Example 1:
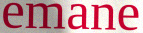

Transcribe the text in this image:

emane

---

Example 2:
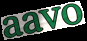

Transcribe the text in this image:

aavo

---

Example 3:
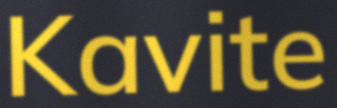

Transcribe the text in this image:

Kavite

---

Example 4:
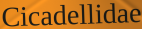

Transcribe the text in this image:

Cicadellidae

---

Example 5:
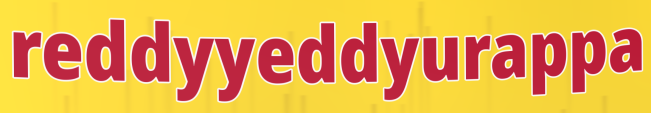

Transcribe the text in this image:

reddyyeddyurappa